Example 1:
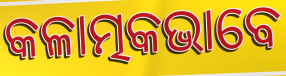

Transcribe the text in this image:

କଳାତ୍ମକଭାବେ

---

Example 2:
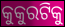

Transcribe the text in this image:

କୁକୁରଟିକୁ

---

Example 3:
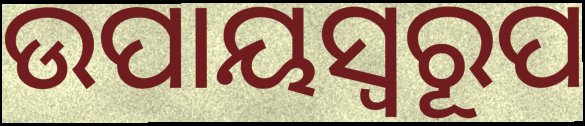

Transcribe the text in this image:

ଉପାୟସ୍ୱରୂପ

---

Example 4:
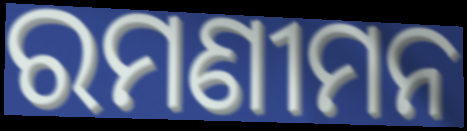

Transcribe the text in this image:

ରମଣୀମନ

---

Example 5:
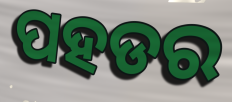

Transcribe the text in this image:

ପହଡର